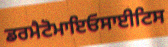
ਡਰਮੈਟੋਮਾਇਓਸਾਈਟਿਸ